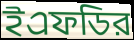
ইএফডির